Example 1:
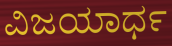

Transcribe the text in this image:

ವಿಜಯಾರ್ಧ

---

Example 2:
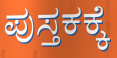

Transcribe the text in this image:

ಪುಸ್ತಕಕ್ಕೆ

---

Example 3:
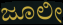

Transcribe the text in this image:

ಜೂಲೀ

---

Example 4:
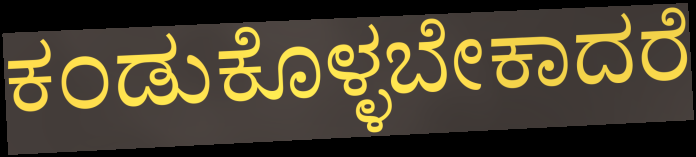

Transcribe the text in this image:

ಕಂಡುಕೊಳ್ಳಬೇಕಾದರೆ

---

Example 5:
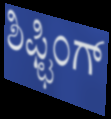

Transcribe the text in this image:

ಶಿಫ್ಟಿಂಗ್